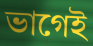
ভাগেই